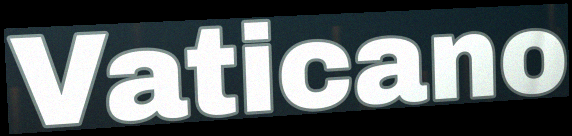
Vaticano